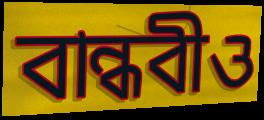
বান্ধবীও